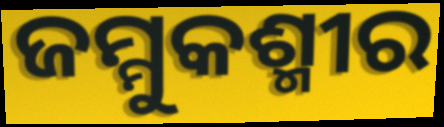
ଜମ୍ମୁକଶ୍ମୀର